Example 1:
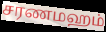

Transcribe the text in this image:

சரணமஹம்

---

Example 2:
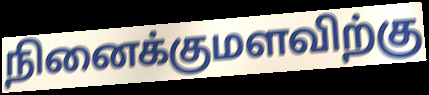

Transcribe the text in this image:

நினைக்குமளவிற்கு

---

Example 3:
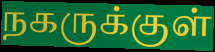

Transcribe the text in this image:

நகருக்குள்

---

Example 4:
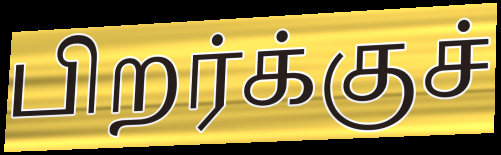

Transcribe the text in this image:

பிறர்க்குச்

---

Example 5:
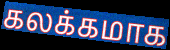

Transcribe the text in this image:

கலக்கமாக